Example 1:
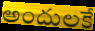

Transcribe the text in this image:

అందులకే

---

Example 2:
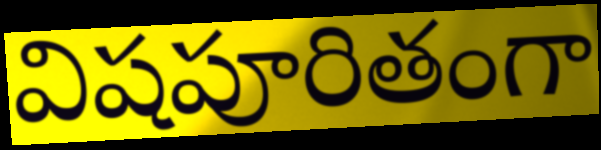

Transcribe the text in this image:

విషపూరితంగా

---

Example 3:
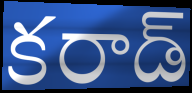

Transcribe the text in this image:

కరాడ్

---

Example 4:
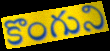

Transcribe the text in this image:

కొంగుని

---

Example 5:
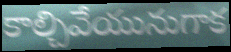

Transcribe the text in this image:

కాల్చివేయునుగాక